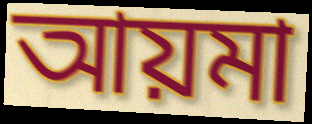
আয়মা